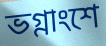
ভগ্নাংশে